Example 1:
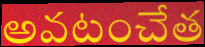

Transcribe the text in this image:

అవటంచేత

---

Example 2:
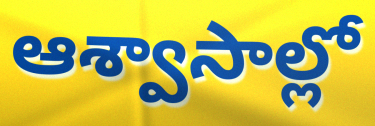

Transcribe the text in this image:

ఆశ్వాసాల్లో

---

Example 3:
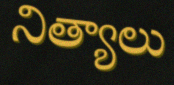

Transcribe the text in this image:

నిత్యాలు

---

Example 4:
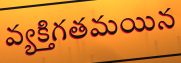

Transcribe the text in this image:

వ్యక్తిగతమయిన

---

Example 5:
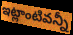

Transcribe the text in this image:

ఇట్లాంటివన్నీ